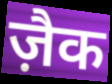
ज़ैक